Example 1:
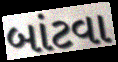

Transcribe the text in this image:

બાંટવા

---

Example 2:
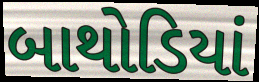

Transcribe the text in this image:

બાથોડિયાં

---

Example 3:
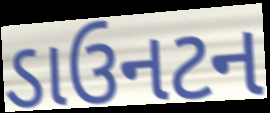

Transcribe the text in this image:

ડાઉનટન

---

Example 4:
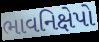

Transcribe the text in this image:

ભાવનિક્ષેપો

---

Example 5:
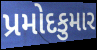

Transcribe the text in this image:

પ્રમોદકુમાર